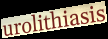
urolithiasis